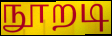
நூறடி